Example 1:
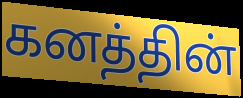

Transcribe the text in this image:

கனத்தின்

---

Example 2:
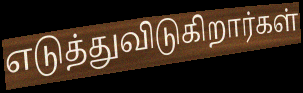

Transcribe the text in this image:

எடுத்துவிடுகிறார்கள்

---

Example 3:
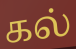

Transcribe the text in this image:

கல்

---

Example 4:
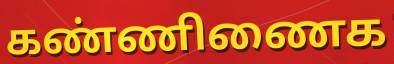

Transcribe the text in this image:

கண்ணிணைக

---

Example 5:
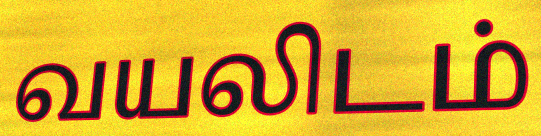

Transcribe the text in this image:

வயலிடம்